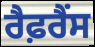
ਰੈਫ਼ਰੈਂਸ